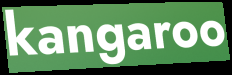
kangaroo